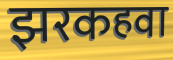
झरकहवा